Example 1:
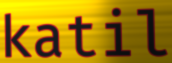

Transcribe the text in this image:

katil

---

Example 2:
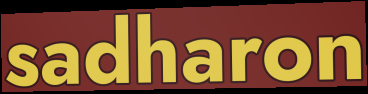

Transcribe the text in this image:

sadharon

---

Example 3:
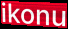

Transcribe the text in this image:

ikonu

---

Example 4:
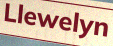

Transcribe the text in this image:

Llewelyn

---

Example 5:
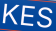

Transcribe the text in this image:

KES